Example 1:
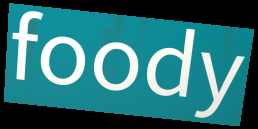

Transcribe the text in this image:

foody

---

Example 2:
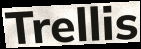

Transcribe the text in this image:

Trellis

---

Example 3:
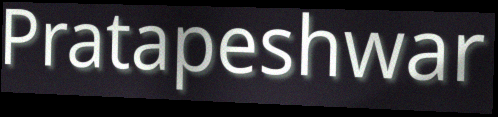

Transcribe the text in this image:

Pratapeshwar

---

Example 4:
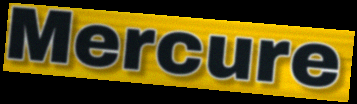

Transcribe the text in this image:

Mercure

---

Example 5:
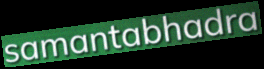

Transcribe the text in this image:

samantabhadra